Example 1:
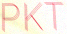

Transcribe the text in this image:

PKT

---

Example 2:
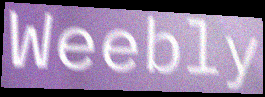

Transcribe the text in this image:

Weebly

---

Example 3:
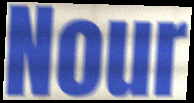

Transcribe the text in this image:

Nour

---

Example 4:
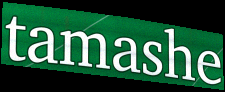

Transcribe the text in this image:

tamashe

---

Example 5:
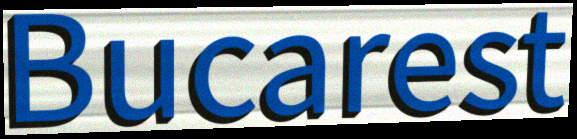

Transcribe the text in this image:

Bucarest